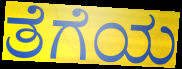
ತೆಗೆಯ